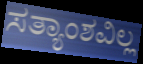
ಸತ್ಯಾಂಶವಿಲ್ಲ